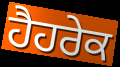
ਹੈਹਰੇਕ